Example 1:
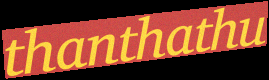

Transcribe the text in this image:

thanthathu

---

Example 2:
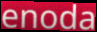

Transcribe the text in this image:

enoda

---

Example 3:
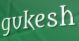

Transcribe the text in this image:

gukesh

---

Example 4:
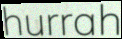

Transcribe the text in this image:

hurrah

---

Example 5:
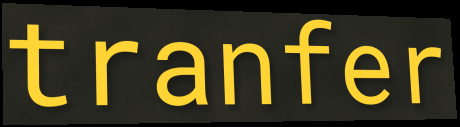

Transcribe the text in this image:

tranfer